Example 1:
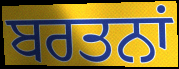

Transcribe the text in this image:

ਬਰਤਨਾਂ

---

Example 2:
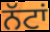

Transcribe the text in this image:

ਨੱਟਾਂ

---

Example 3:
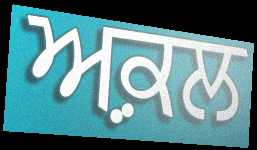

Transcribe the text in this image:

ਅ਼ਕ਼ਲ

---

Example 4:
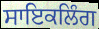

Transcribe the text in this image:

ਸਾਇਕਲਿੰਗ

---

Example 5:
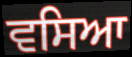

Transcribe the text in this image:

ਵਸਿਆ